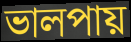
ভালপায়